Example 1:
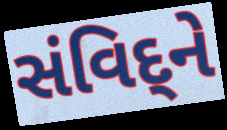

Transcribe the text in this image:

સંવિદ્‌ને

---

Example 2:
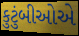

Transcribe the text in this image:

કુટુંબીઓએ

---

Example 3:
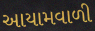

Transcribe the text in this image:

આયામવાળી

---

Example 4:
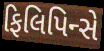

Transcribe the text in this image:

ફિલિપિન્સે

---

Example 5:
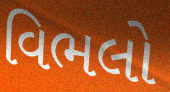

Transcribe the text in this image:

વિભલો